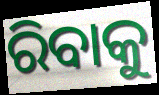
ରିବାକୁ